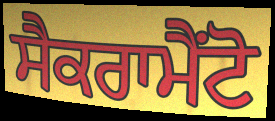
ਸੈਕਰਾਮੈਂਟੋ